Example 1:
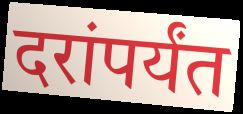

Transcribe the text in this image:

दरांपर्यंत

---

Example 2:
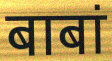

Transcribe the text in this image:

बाबां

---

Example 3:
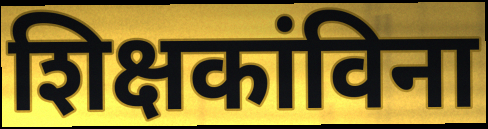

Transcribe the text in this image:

शिक्षकांविना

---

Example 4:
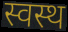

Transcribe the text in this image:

स्वस्थ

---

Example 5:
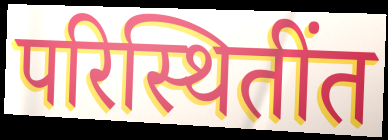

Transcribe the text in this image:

परिस्थितींत